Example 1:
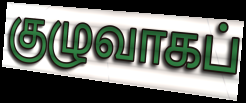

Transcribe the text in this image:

குழுவாகப்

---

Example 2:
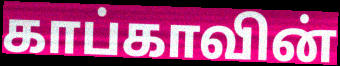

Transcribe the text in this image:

காப்காவின்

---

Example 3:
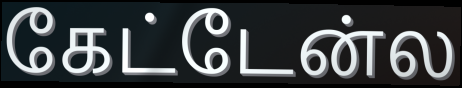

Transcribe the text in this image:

கேட்டேன்ல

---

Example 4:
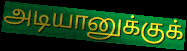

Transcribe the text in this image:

அடியானுக்குக்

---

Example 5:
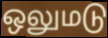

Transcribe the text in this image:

ஒலுமடு